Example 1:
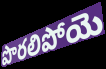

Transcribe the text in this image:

పొరలిపోయె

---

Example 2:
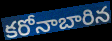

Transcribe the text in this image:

కరోనాబారిన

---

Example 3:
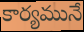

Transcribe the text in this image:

కార్యమునే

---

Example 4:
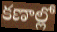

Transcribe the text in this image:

కణాల్లో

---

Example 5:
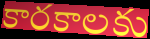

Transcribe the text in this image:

కారకాలకు